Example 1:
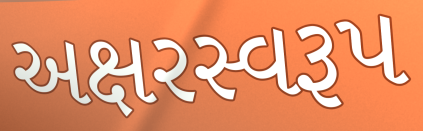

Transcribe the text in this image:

અક્ષરસ્વરૂપ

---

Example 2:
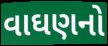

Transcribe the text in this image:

વાઘણનો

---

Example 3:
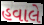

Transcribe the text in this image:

હવાલે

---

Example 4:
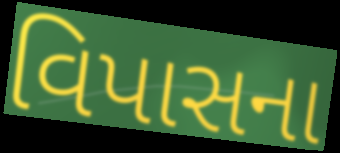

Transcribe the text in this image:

વિપાસના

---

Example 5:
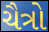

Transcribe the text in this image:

ચૈત્રો